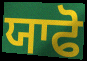
ਯਾਫੋ